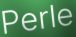
Perle